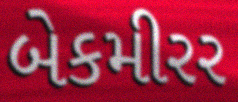
બેકમીરર